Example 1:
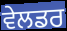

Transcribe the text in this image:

ਵੇਲਡਰ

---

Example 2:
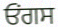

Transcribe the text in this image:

ਓਂਗਸ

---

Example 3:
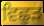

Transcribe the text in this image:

ਵਿਛੁੜ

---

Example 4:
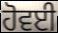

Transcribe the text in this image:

ਹੋਵਈ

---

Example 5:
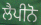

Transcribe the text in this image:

ਲੈਪੀਨੋ